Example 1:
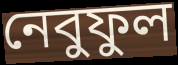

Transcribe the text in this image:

নেবুফুল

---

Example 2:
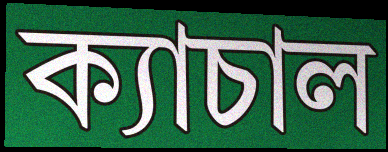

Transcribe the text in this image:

ক্যাচাল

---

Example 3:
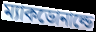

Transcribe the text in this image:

ম্যাকডোনাল্ডে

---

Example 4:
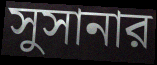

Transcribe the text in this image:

সুসানার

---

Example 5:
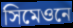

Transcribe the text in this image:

সিমেওনে